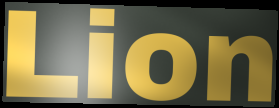
Lion